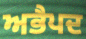
ਅਭੈਪਦ